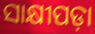
ସାକ୍ଷୀପଡ଼ା